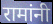
रामांनी